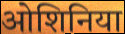
ओशिनिया